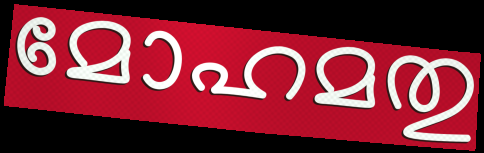
മോഹമതു